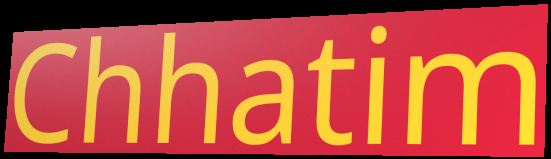
Chhatim